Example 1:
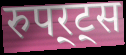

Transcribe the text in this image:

रुपर्ट्स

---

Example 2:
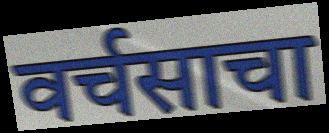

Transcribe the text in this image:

वर्चसाचा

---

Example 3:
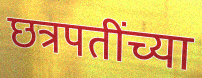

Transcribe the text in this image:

छत्रपतींच्या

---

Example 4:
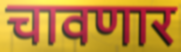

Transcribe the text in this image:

चावणार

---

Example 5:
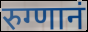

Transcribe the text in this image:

रुग्णानं